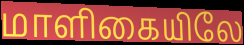
மாளிகையிலே